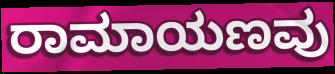
ರಾಮಾಯಣವು